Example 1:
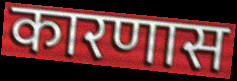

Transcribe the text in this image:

कारणास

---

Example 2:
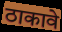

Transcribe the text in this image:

ठाकावे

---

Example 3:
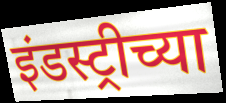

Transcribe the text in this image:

इंडस्ट्रीच्या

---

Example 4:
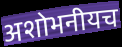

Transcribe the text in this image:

अशोभनीयच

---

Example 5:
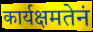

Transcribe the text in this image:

कार्यक्षमतेनं